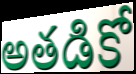
అతడికో